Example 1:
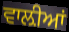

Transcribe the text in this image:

ਵਾਲ਼ੀਆਂ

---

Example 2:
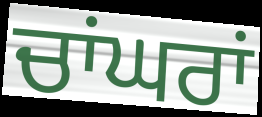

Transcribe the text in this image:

ਚਾਂਘਰਾਂ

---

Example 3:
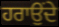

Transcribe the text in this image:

ਹਰਾਉਂਦੇ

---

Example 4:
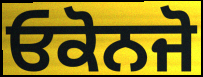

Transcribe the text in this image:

ਓਕੋਨਜੋ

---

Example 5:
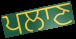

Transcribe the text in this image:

ਪਲਾਣ